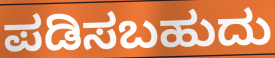
ಪಡಿಸಬಹುದು